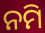
ନମି